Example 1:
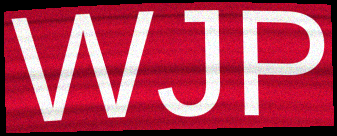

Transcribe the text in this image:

WJP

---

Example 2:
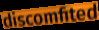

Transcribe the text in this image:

discomfited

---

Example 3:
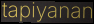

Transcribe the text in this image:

tapiyanan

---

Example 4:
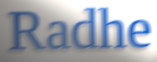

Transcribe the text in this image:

Radhe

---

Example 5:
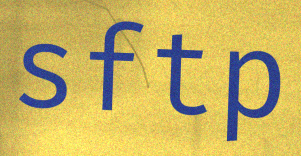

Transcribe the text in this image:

sftp